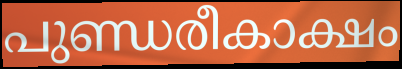
പുണ്ഡരീകാക്ഷം